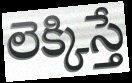
లెక్కిస్తే